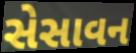
સેસાવન